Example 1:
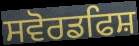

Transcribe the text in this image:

ਸਵੋਰਡਫਿਸ਼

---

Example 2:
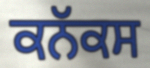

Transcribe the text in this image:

ਕਨੱਕਸ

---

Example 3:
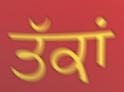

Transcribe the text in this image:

ਤੱਕਾਂ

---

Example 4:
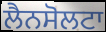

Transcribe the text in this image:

ਲੈਨਸੋਲਟਾ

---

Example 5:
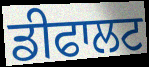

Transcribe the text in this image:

ਡੀਫਾਲਟ